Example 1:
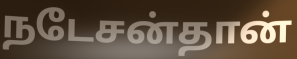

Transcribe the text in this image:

நடேசன்தான்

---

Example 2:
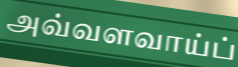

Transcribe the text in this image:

அவ்வளவாய்ப்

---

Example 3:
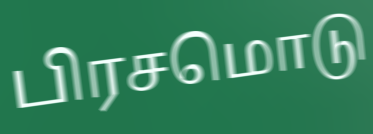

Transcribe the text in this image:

பிரசமொடு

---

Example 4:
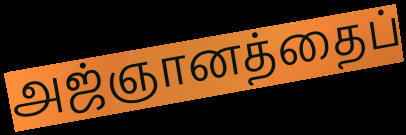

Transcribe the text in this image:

அஜ்ஞானத்தைப்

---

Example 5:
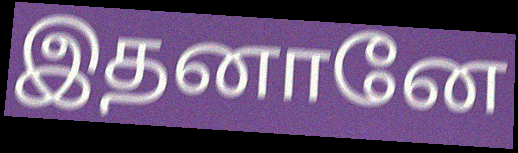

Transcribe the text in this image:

இதனானே